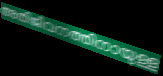
അതിജീവനത്തിനായുള്ള